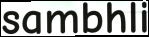
sambhli